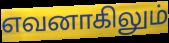
எவனாகிலும்